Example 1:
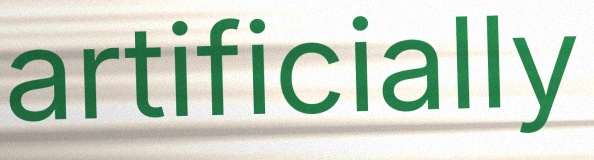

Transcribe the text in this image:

artificially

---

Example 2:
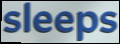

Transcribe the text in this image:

sleeps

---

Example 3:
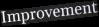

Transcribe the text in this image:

Improvement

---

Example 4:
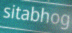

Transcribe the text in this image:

sitabhog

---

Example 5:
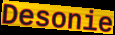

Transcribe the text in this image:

Desonie